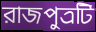
রাজপুত্রটি